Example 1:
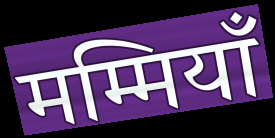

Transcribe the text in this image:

मम्मियाँ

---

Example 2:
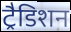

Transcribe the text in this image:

ट्रैडिशन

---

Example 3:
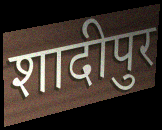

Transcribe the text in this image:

शादीपुर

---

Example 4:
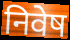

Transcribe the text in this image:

निवेष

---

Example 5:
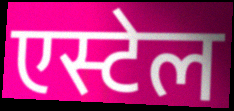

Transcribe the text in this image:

एस्टेल